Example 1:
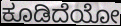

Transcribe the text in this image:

ಕೂಡಿದೆಯೋ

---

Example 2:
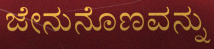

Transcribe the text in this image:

ಜೇನುನೊಣವನ್ನು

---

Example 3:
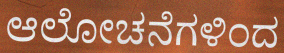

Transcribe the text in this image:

ಆಲೋಚನೆಗಳಿಂದ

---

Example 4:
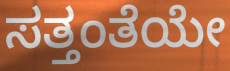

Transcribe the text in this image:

ಸತ್ತಂತೆಯೇ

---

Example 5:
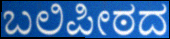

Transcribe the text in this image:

ಬಲಿಪೀಠದ